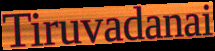
Tiruvadanai